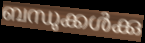
ബന്ധുക്കൾക്കു